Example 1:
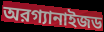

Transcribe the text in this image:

অরগ্যানাইজড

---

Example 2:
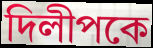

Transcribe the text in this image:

দিলীপকে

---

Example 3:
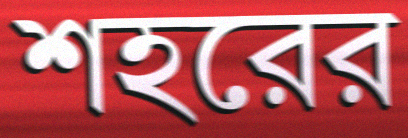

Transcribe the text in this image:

শহরের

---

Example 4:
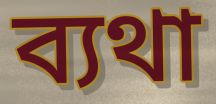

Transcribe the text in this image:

ব্যথা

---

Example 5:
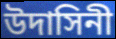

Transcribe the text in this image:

উদাসিনী